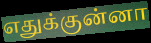
எதுக்குன்னா